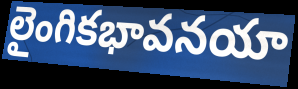
లైంగికభావనయా